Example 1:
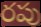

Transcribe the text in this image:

రపు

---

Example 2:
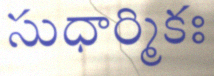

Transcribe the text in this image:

సుధార్మికః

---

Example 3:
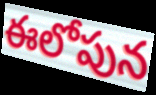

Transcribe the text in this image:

ఈలోపున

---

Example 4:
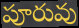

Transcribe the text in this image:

పూరువు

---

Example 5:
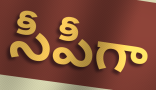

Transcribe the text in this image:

సీపీగా